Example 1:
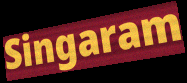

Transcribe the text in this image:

Singaram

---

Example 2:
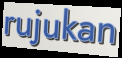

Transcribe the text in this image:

rujukan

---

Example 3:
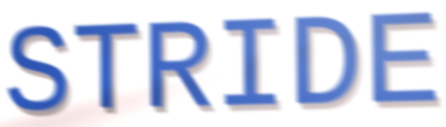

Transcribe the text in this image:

STRIDE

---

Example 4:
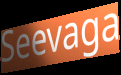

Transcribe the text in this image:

Seevaga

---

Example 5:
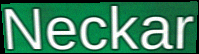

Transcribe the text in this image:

Neckar